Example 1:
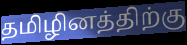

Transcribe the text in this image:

தமிழினத்திற்கு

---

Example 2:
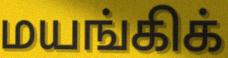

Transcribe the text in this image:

மயங்கிக்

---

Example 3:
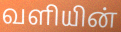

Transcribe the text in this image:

வளியின்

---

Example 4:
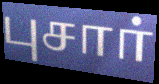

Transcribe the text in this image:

புசார்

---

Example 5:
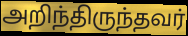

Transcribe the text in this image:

அறிந்திருந்தவர்